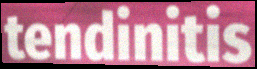
tendinitis